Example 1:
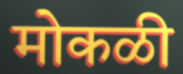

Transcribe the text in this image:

मोकळी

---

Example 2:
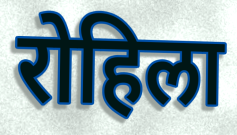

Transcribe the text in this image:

रोहिला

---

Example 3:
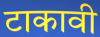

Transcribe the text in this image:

टाकावी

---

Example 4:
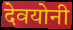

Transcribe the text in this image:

देवयोनी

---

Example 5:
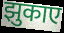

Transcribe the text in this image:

झुकाए